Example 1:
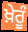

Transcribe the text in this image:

ਖ਼ੇਰੂੰ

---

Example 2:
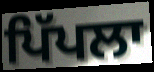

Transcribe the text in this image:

ਪਿੱਪਲਾ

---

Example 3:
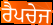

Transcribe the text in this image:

ਰੈਪਚੇਜ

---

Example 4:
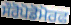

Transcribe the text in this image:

ਸੌਰੋਪੋਡੋਮੋਰਫ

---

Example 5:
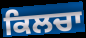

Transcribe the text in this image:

ਕਿਲਚਾ